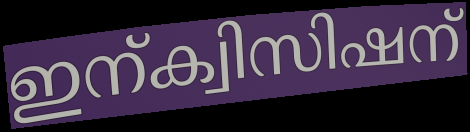
ഇന്ക്വിസിഷന്